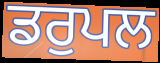
ਡਰੁਪਲ